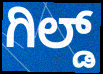
ಗಿಲ್ಡ್